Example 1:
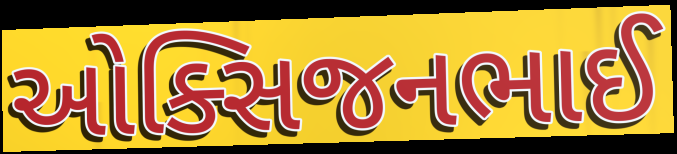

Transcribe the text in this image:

ઓક્સિજનભાઈ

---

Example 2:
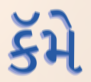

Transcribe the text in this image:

કૅમે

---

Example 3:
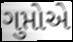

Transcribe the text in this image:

ગુપ્તોએ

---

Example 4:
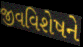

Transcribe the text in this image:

જીવવિશેષને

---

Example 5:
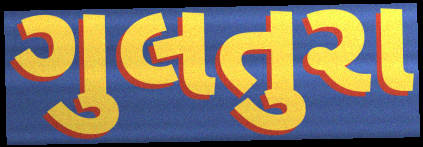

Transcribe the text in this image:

ગુલતુરા